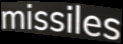
missiles